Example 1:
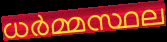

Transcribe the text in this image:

ധർമ്മസ്ഥല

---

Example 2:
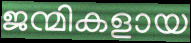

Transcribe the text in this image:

ജന്മികളായ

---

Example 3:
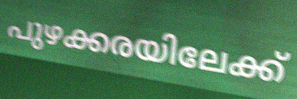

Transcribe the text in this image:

പുഴക്കരയിലേക്ക്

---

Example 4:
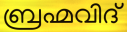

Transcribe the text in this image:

ബ്രഹ്മവിദ്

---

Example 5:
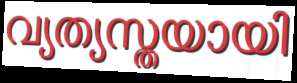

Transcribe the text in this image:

വ്യത്യസ്തയായി